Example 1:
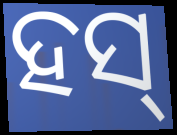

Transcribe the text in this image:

ହସ୍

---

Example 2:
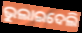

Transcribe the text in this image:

ଭୁଲାଇଦେଲି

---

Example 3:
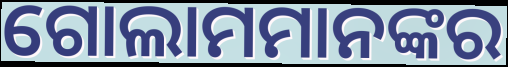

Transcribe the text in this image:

ଗୋଲାମମାନଙ୍କର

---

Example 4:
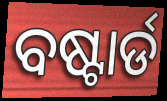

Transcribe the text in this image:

ବଷ୍ଟାର୍ଡ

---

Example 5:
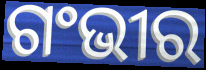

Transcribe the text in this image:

ଗଂଭୀର